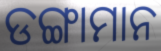
ଡଙ୍ଗାମାନ